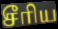
சீரிய